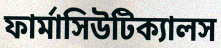
ফার্মাসিউটিক্যালস